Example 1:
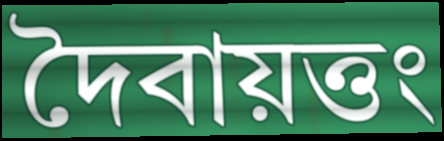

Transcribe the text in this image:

দৈবায়ত্তং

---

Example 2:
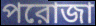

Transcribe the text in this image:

পরোজা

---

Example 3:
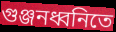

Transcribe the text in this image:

গুঞ্জনধ্বনিতে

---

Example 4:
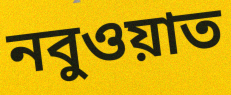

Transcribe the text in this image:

নবুওয়াত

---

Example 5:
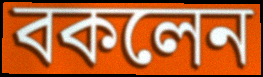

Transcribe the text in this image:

বকলেন